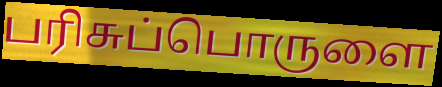
பரிசுப்பொருளை